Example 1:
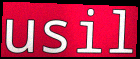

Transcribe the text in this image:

usil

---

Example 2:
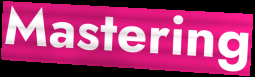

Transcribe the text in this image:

Mastering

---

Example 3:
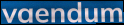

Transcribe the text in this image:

vaendum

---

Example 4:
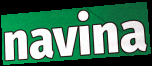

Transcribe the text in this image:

navina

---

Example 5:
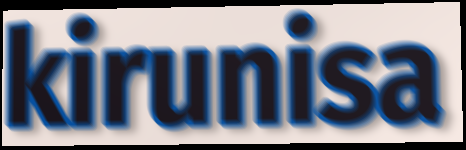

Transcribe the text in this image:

kirunisa